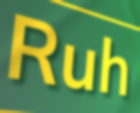
Ruh